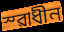
স্ৱাধীন